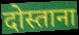
दोस्ताना